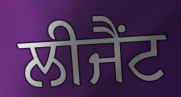
ਲੀਜੈਂਟ